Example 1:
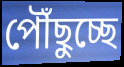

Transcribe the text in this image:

পৌঁছুচ্ছে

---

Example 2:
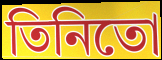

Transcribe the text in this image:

তিনিতো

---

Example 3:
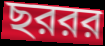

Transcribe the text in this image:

ছররর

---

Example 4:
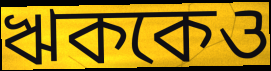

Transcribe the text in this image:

ঋককেও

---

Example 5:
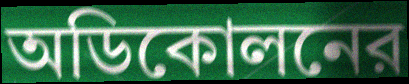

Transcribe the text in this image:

অডিকোলনের